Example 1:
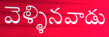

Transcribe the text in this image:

వెళ్ళినవాడు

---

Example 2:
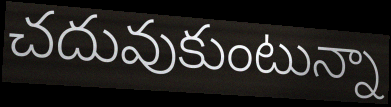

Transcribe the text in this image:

చదువుకుంటున్నా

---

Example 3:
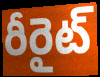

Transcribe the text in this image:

రీరైట్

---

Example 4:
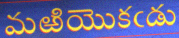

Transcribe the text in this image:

మఱియొకఁడు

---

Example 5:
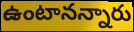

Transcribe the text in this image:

ఉంటానన్నారు